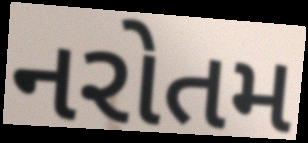
નરોતમ